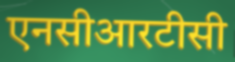
एनसीआरटीसी